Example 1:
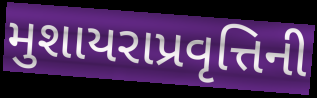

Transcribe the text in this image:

મુશાયરાપ્રવૃત્તિની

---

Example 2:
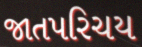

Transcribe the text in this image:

જાતપરિચય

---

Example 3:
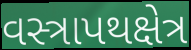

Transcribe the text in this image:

વસ્ત્રાપથક્ષેત્ર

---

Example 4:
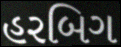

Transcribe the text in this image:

હરબિગ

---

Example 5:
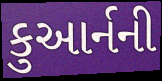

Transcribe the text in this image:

કુઆર્નની